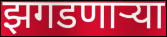
झगडणाऱ्या